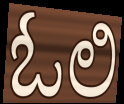
ಓಲಿ